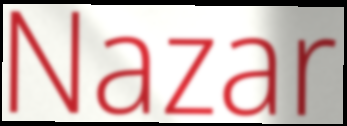
Nazar